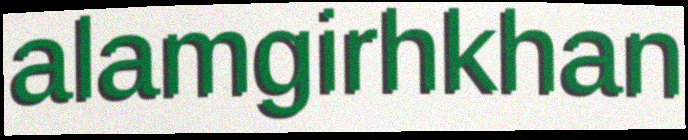
alamgirhkhan